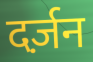
दर्ज़न